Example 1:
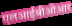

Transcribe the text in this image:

एलआईबीओआर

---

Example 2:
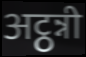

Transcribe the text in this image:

अट्ठन्नी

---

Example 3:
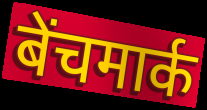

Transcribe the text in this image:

बेंचमार्क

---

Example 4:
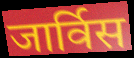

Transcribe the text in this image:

जार्विस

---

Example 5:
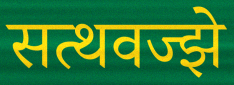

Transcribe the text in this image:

सत्थवज्झे